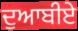
ਦੁਆਬੀਏ